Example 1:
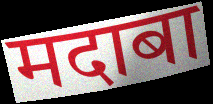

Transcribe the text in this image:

मदाबा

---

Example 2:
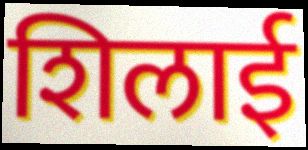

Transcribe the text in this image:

शिलाई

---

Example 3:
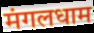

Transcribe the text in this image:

मंगलधाम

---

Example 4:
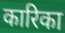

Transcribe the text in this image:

कारिका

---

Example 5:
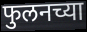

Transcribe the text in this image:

फुलनच्या